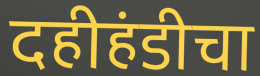
दहीहंडीचा